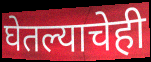
घेतल्याचेही